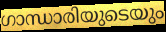
ഗാന്ധാരിയുടെയും